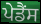
ਪੇਡੈਂਸ